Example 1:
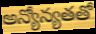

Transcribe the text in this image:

అన్యోన్యతతో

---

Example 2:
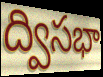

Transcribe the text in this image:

ద్విసభా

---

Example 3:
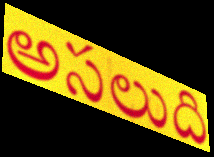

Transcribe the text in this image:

అసలుది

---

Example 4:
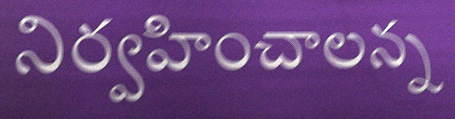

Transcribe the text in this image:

నిర్వహించాలన్న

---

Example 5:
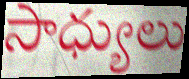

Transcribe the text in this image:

సాధ్యులు